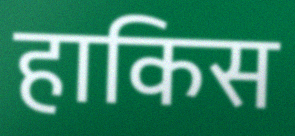
हाकिस